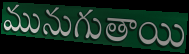
మునుగుతాయి